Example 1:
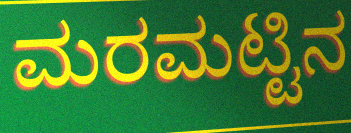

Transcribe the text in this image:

ಮರಮಟ್ಟಿನ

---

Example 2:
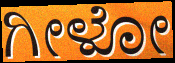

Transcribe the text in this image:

ಗೀಳೋ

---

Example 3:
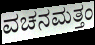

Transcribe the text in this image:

ವಚನಮತ್ತಂ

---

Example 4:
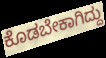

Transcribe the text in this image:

ಕೊಡಬೇಕಾಗಿದ್ದು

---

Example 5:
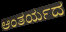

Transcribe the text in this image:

ಆಂತರ್ಯದ